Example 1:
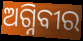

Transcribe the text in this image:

ଅଗ୍ନିବୀର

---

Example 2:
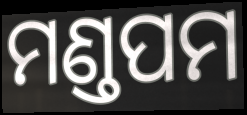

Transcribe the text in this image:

ମଣ୍ଡପମ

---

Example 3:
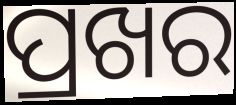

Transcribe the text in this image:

ପ୍ରଖର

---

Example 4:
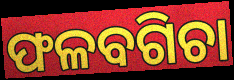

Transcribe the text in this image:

ଫଳବଗିଚା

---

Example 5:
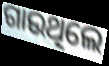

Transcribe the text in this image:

ଗାଉଥିଲେ